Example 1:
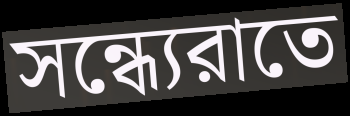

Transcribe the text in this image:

সন্ধ্যেরাতে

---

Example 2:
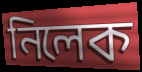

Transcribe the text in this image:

নিলেক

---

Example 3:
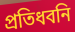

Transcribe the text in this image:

প্রতিধবনি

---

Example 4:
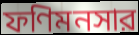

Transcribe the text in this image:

ফণিমনসার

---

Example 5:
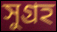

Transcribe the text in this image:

সুগ্রহ